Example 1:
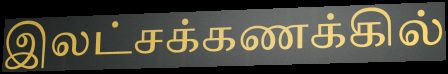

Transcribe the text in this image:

இலட்சக்கணக்கில்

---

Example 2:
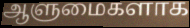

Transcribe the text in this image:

ஆளுமைகளாக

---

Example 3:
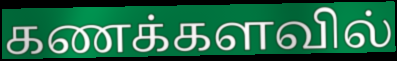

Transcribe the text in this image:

கணக்களவில்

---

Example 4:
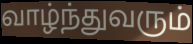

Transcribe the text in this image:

வாழ்ந்துவரும்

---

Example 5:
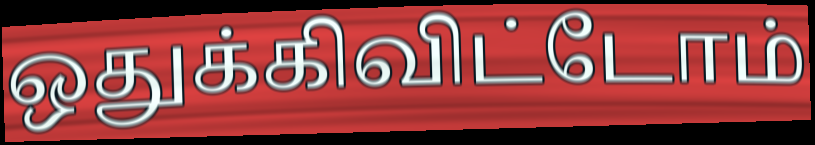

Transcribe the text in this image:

ஒதுக்கிவிட்டோம்